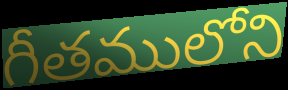
గీతములోని